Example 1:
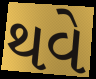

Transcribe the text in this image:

થવે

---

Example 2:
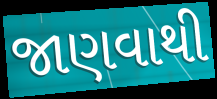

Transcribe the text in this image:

જાણવાથી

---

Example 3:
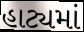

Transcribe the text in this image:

હાટ્યમાં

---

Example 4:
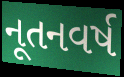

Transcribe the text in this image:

નૂતનવર્ષ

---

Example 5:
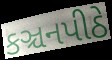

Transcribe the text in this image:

કઞ્ચનપીઠે